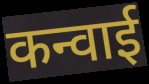
कन्वाई